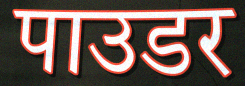
पाउडर